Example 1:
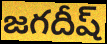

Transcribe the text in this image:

జగదీష్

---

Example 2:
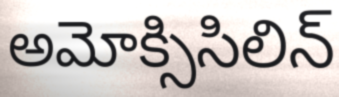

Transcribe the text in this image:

అమోక్సిసిలిన్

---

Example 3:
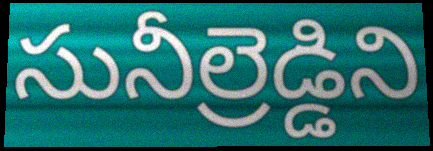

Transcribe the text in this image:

సునీల్రెడ్డిని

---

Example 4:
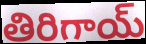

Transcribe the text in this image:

తిరిగాయ్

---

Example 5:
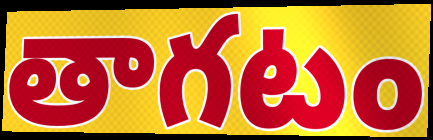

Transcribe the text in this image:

తాగటం